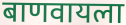
बाणवायला